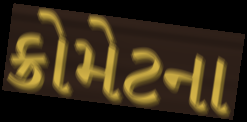
ક્રોમેટના